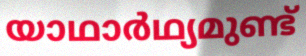
യാഥാർഥ്യമുണ്ട്